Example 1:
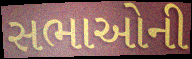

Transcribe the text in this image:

સભાઓની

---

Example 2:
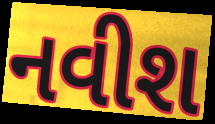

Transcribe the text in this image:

નવીશ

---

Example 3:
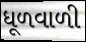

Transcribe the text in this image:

ધૂળવાળી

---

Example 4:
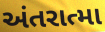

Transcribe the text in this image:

અંતરાત્મા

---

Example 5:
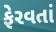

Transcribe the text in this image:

ફેરવતાં